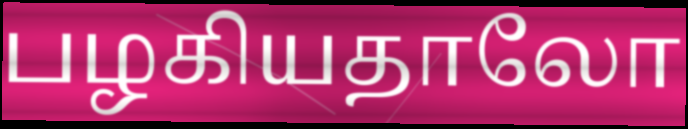
பழகியதாலோ